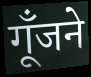
गूँजने